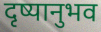
दृष्यानुभव